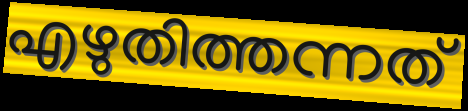
എഴുതിത്തന്നത്